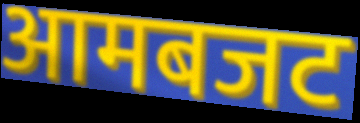
आमबजट